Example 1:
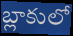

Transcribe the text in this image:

బ్లాకులో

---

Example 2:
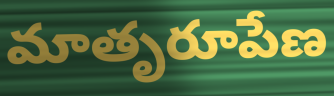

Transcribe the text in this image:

మాతృరూపేణ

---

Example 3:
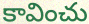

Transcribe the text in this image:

కావించు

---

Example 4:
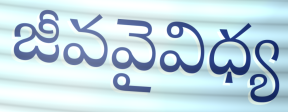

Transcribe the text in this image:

జీవవైవిధ్య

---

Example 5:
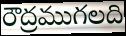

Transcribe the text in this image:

రౌద్రముగలది